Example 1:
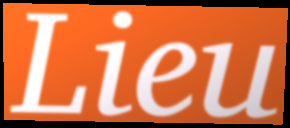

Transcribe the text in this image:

Lieu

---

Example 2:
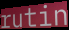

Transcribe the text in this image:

rutin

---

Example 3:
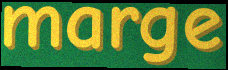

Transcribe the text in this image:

marge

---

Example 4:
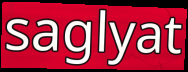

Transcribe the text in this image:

saglyat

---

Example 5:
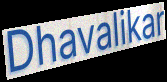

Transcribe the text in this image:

Dhavalikar